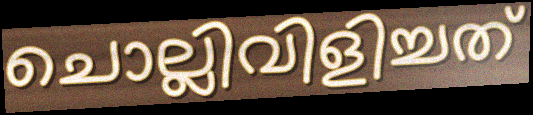
ചൊല്ലിവിളിച്ചത്